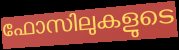
ഫോസിലുകളുടെ